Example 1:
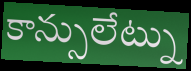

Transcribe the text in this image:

కాన్సులేట్ను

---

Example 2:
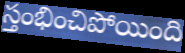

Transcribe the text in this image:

స్తంభించిపోయింది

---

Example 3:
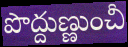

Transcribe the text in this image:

పొద్దుణ్ణుంచీ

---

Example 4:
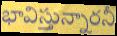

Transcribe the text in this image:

భావిస్తున్నారనీ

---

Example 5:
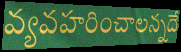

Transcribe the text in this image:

వ్యవహరించాలన్నదే